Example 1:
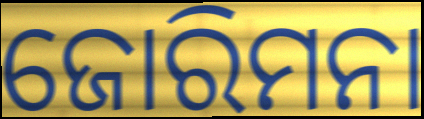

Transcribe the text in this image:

ଜୋରିମନା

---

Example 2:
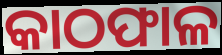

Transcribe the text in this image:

କାଠଫାଳ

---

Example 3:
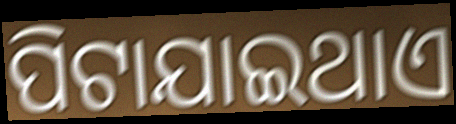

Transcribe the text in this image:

ପିଟାଯାଇଥାଏ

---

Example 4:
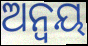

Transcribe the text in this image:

ଅନ୍ୱୟ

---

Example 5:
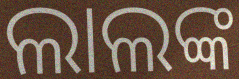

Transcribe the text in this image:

ଲାଲଙ୍କ